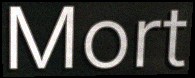
Mort